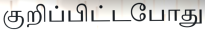
குறிப்பிட்டபோது